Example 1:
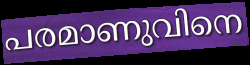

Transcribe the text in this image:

പരമാണുവിനെ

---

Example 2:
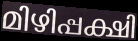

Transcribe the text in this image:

മിഴിപ്പക്ഷി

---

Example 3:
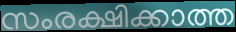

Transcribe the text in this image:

സംരക്ഷിക്കാത്ത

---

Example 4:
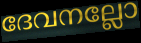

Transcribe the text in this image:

ദേവനല്ലോ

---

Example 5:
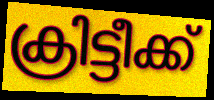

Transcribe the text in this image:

ക്രിട്ടീക്ക്